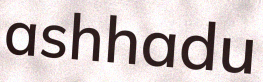
ashhadu